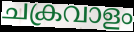
ചക്രവാളം